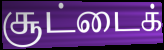
சூட்டைக்